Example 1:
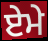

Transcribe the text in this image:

ਏਮੇ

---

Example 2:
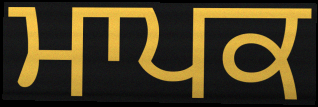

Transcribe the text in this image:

ਮਾਪਕ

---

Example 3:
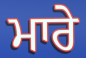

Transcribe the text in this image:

ਮਾਰੇ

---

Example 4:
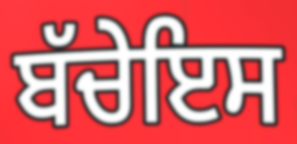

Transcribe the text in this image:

ਬੱਚੇਇਸ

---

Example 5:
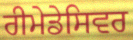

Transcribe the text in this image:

ਰੀਮੇਡੇਸਿਵਰ